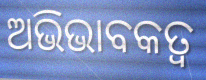
ଅଭିଭାବକତ୍ବ